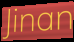
Jinan